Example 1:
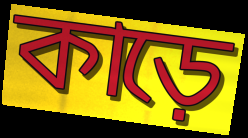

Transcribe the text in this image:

কাড়ে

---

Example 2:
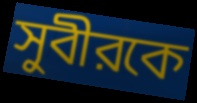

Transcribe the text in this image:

সুবীরকে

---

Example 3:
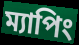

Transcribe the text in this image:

ম্যাপিং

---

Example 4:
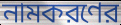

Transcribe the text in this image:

নামকরণের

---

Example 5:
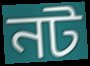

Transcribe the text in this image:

নট